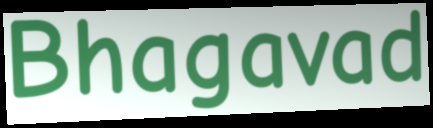
Bhagavad